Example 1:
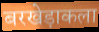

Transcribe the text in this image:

बरखेड़ाकला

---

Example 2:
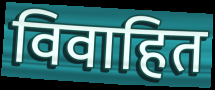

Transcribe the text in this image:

विवाहित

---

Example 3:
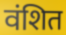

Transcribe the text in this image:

वंशित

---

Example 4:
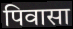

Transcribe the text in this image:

पिवासा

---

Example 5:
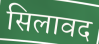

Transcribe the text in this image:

सिलावद